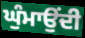
ਘੁੰਮਾਉਂਦੀ